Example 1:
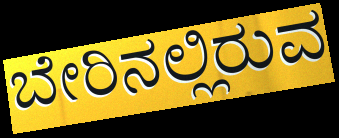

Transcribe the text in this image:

ಬೇರಿನಲ್ಲಿರುವ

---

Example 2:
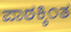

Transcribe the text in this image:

ಪಾಠಕ್ಕಿಂತ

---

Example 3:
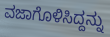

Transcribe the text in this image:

ವಜಾಗೊಳಿಸಿದ್ದನ್ನು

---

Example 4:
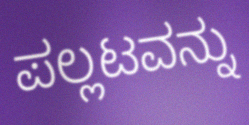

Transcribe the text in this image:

ಪಲ್ಲಟವನ್ನು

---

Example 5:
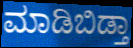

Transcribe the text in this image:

ಮಾಡಿಬಿಡ್ತಾ